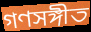
গণসঙ্গীত